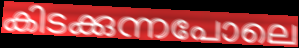
കിടക്കുന്നപോലെ